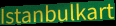
Istanbulkart